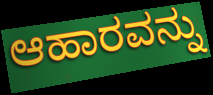
ಆಹಾರವನ್ನು